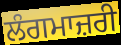
ਲੰਗਮਾਜ਼ਰੀ